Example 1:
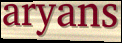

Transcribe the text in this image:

aryans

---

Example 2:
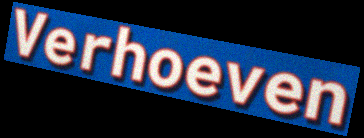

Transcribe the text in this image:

Verhoeven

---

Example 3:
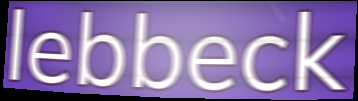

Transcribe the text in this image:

lebbeck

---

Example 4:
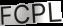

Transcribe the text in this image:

FCPL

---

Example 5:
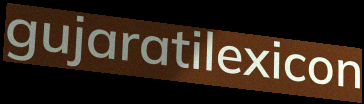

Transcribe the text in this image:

gujaratilexicon